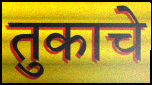
तुकाचे